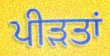
ਪੀੜਤਾਂ